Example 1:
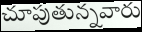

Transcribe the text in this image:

చూపుతున్నవారు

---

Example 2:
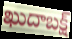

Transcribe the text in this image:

ఖుదాబక్ష్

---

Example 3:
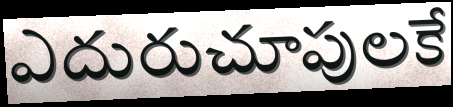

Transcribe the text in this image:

ఎదురుచూపులకే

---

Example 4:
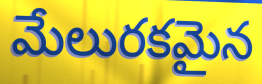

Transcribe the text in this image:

మేలురకమైన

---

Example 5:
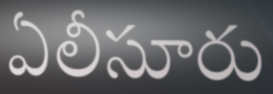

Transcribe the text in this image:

ఏలీసూరు